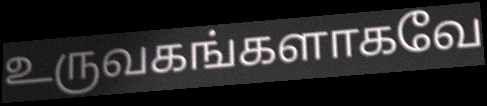
உருவகங்களாகவே